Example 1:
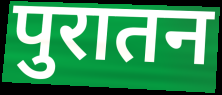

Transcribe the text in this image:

पुरातन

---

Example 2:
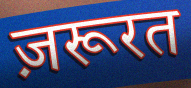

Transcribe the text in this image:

ज़रूरत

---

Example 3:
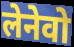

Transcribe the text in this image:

लेनेवो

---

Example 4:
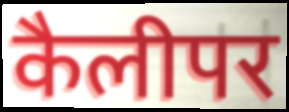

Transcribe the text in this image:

कैलीपर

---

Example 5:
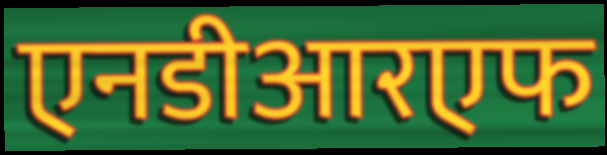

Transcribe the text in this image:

एनडीआरएफ